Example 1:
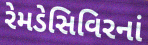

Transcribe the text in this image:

રેમડેસિવિરનાં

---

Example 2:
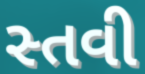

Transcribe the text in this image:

સ્તવી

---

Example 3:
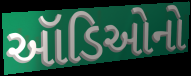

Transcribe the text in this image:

ઑડિઓનો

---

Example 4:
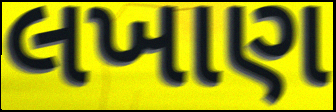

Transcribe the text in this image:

લખાણ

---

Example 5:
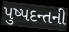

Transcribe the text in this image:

પુષ્પદન્તની